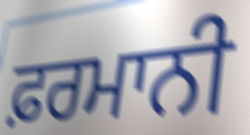
ਫ਼ਰਮਾਨੀ